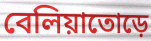
বেলিয়াতোড়ে